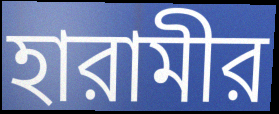
হারামীর